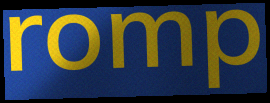
romp